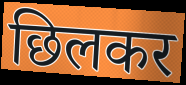
छिलकर